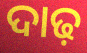
ଦାଢ଼